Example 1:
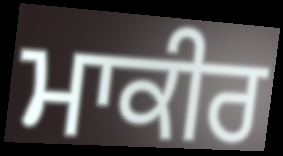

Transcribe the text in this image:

ਮਾਕੀਰ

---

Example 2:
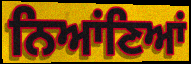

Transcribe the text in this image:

ਨਿਆਂਣਿਆਂ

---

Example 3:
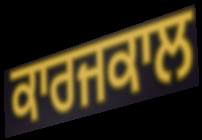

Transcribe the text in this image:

ਕਾਰਜਕਾਲ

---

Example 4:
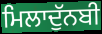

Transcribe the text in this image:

ਮਿਲਾਦੁੱਨਬੀ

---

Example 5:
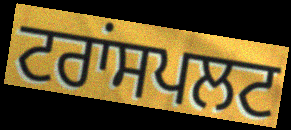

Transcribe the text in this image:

ਟਰਾਂਸਪਲਟ